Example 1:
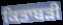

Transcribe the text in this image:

ਕਿਤਾਬੜੀ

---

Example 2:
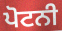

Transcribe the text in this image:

ਪੋਟਨੀ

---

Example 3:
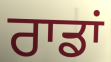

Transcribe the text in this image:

ਰਾਡਾਂ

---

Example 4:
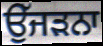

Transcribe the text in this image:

ਉੱਜੜਨਾ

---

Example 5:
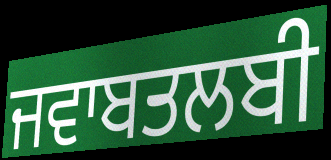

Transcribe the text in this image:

ਜਵਾਬਤਲਬੀ